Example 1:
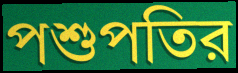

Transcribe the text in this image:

পশুপতির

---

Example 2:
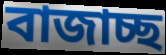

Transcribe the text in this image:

বাজাচ্ছ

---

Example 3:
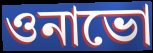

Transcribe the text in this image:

ওনাভো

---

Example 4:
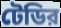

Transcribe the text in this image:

টেডির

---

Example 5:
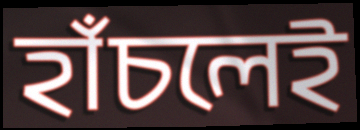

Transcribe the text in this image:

হাঁচলেই